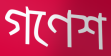
গণেশ